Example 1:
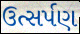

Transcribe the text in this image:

ઉત્સર્પણ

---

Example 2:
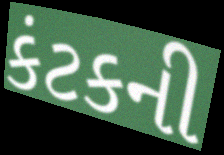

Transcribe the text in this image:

કંટકની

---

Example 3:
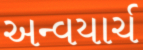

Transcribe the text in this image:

અન્વયાર્ચ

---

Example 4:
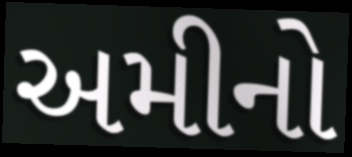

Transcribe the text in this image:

અમીનો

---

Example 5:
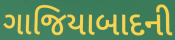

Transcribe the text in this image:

ગાજિયાબાદની